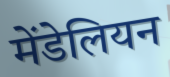
मेंडेलियन